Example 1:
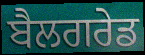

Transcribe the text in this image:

ਬੈਲਗਰੇਡ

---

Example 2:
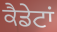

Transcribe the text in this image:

ਕੈਡੇਟਾਂ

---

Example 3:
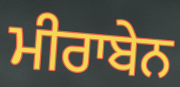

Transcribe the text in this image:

ਮੀਰਾਬੇਨ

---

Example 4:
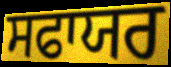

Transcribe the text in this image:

ਸਫਾਯਰ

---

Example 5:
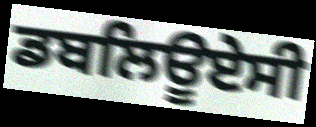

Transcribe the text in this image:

ਡਬਲਿਊਏਸੀ